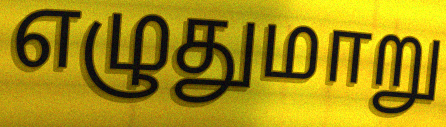
எழுதுமாறு